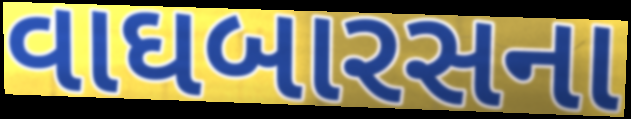
વાઘબારસના